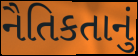
નૈતિકતાનું